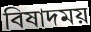
বিষাদময়